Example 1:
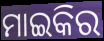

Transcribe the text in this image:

ମାଇକିର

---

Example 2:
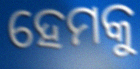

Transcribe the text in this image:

ହେମକୁ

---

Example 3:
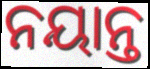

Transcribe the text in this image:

ନୟାନ୍ତ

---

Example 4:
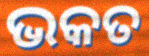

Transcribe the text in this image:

ଭକତ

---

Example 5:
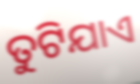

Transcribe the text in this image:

ତୁଟିଯାଏ